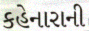
કહેનારાની